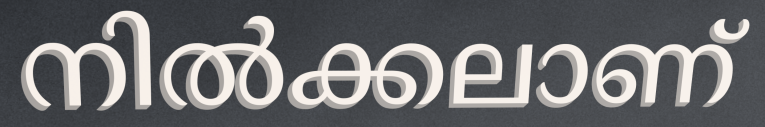
നിൽക്കലാണ്